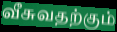
வீசுவதற்கும்